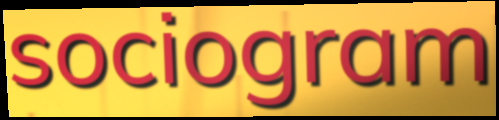
sociogram